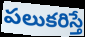
పలుకరిస్తే